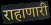
राहाणारी